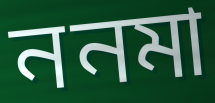
ননমা